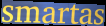
smartas